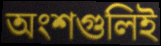
অংশগুলিই